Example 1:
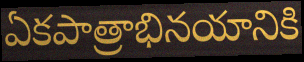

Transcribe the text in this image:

ఏకపాత్రాభినయానికి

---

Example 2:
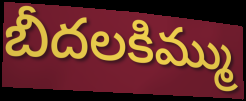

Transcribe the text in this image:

బీదలకిమ్ము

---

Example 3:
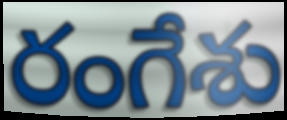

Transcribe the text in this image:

రంగేశు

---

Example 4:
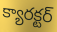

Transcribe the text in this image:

క్యారక్టర్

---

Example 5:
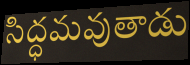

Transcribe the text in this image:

సిద్ధమవుతాడు